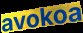
avokoa